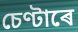
চেণ্টাৰে